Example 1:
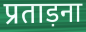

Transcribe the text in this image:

प्रताड़ना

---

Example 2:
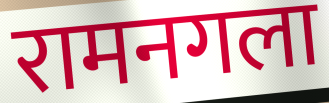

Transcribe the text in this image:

रामनगला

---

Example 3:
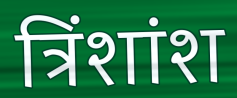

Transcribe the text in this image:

त्रिंशांश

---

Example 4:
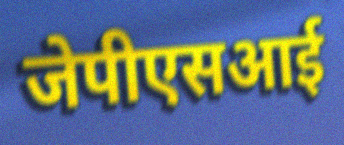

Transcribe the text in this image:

जेपीएसआई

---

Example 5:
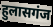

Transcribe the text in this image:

हुलासगंज